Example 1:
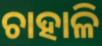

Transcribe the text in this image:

ଚାହାଳି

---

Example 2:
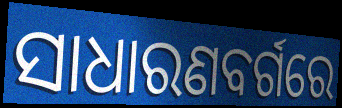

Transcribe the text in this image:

ସାଧାରଣବର୍ଗରେ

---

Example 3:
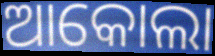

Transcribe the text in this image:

ଆକୋଲା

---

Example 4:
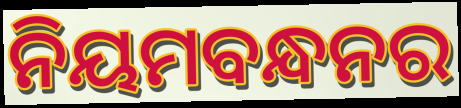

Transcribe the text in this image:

ନିୟମବନ୍ଧନର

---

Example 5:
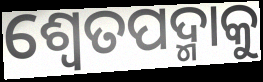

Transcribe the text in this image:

ଶ୍ୱେତପଦ୍ମାକୁ